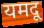
यमदू